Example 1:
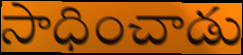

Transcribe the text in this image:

సాధించాడు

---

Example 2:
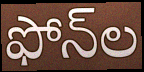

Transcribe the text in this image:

ఫోన్‌ల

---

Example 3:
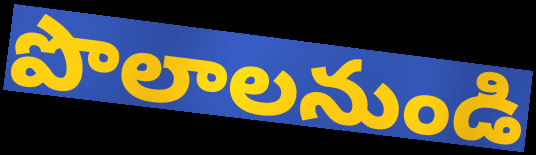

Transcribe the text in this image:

పొలాలనుండి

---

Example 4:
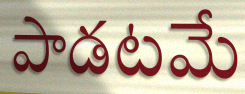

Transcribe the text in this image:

పాడటమే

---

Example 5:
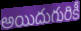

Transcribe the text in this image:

అయిదుగురికీ